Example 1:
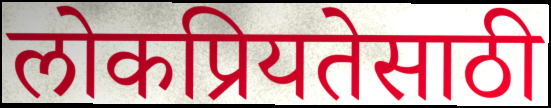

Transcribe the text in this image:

लोकप्रियतेसाठी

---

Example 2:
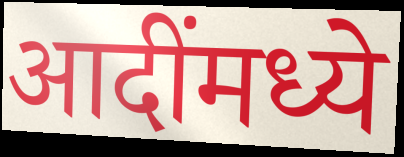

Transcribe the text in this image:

आदींमध्ये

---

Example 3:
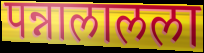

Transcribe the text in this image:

पन्नालालला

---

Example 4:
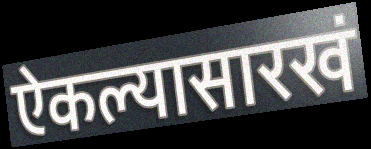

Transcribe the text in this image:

ऐकल्यासारखं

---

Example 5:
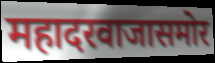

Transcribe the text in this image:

महादरवाजासमोर